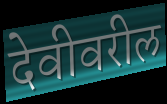
देवीवरील